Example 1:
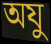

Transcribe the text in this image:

অযু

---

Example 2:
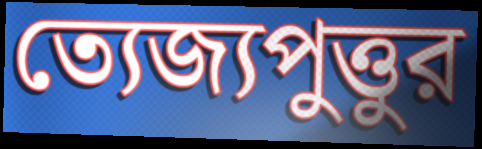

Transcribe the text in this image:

ত্যেজ্যপুত্তুর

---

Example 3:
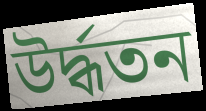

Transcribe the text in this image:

উর্দ্ধতন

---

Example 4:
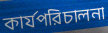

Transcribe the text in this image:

কার্যপরিচালনা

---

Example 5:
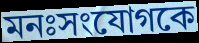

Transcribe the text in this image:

মনঃসংযোগকে